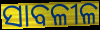
ସାବଳୀଳ